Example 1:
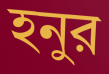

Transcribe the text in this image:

হনুর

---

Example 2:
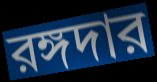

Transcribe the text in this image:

রঙ্গদার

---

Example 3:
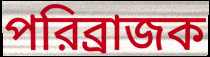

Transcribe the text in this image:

পরিব্রাজক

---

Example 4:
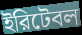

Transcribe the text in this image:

ইরিটেবল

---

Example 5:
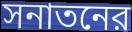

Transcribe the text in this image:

সনাতনের